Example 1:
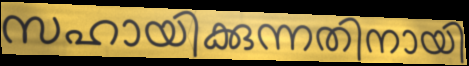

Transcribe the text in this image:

സഹായിക്കുന്നതിനായി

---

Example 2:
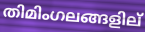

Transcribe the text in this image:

തിമിംഗലങ്ങളില്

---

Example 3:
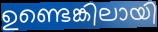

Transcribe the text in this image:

ഉണ്ടെങ്കിലായി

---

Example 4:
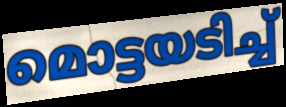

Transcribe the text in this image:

മൊട്ടയടിച്ച്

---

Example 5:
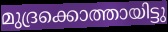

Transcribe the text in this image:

മുദ്രക്കൊത്തായിട്ടു